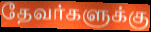
தேவர்களுக்கு